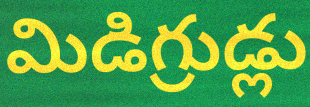
మిడిగ్రుడ్లు